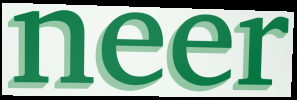
neer